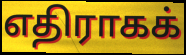
எதிராகக்